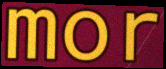
mor